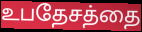
உபதேசத்தை